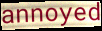
annoyed